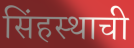
सिंहस्थाची